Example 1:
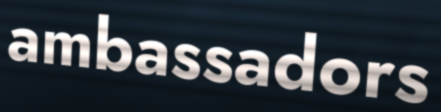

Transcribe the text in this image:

ambassadors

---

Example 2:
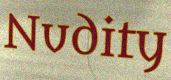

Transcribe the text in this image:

Nudity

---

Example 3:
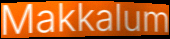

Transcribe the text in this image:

Makkalum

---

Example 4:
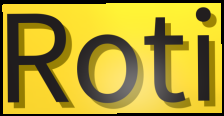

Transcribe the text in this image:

Roti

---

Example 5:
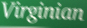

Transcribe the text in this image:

Virginian